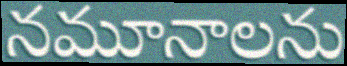
నమూనాలను